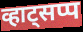
व्हाट्सप्प